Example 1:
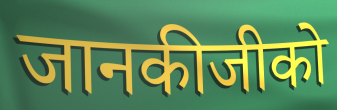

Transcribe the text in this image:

जानकीजीको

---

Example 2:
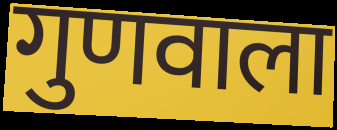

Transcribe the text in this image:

गुणवाला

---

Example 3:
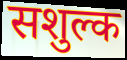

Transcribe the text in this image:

सशुल्क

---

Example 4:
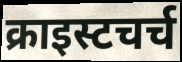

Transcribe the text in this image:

क्राइस्टचर्च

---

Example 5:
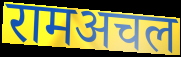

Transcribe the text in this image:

रामअचल